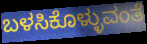
ಬಳಸಿಕೊಳ್ಳುವಂತೆ